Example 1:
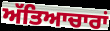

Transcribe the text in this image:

ਅੱਤਿਆਚਾਰਾਂ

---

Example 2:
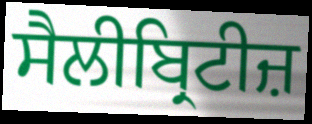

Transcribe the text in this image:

ਸੈਲੀਬ੍ਰਿਟੀਜ਼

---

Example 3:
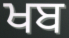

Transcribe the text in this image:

ਖਬ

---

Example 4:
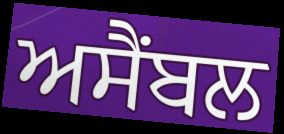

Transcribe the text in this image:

ਅਸੈਂਬਲ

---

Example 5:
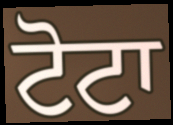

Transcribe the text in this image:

ਟੋਟਾ